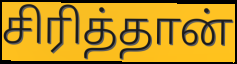
சிரித்தான்